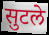
सुटले